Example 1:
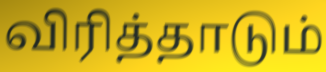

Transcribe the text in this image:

விரித்தாடும்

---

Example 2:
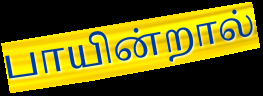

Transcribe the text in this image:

பாயின்றால்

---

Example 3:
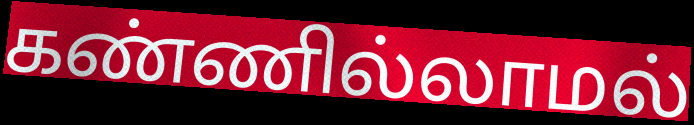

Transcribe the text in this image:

கண்ணில்லாமல்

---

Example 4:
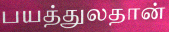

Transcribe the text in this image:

பயத்துலதான்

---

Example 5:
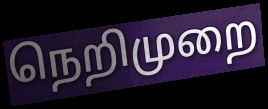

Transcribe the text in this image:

நெறிமுறை